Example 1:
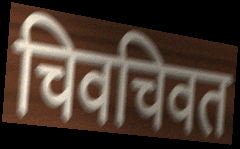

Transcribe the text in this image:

चिवचिवत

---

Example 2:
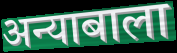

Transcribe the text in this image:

अन्याबाला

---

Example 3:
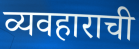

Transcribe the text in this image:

व्यवहाराची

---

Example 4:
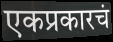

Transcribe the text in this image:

एकप्रकारचं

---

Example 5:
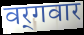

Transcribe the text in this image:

वर्गवार